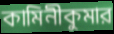
কামিনীকুমার